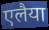
एलैया